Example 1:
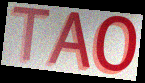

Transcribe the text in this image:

TAO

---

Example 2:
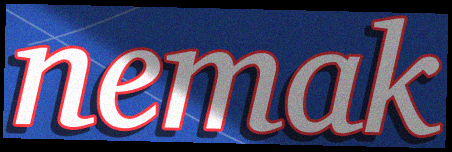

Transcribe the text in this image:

nemak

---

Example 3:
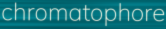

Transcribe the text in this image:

chromatophore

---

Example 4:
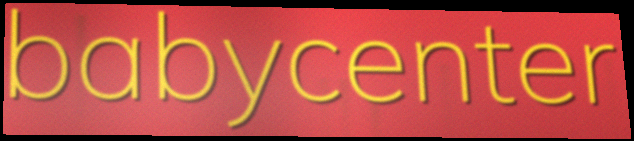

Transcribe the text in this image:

babycenter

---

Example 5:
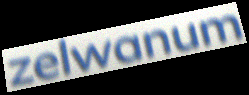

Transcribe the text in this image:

zelwanum